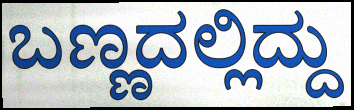
ಬಣ್ಣದಲ್ಲಿದ್ದು